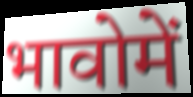
भावोमें